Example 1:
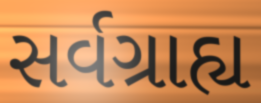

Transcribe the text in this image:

સર્વગ્રાહ્ય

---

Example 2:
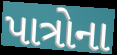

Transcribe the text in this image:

પાત્રોના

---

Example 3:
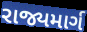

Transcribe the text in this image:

રાજ્યમાર્ગ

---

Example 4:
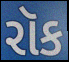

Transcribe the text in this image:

રૉક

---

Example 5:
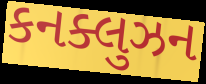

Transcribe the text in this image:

કનક્લુઝન